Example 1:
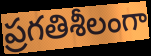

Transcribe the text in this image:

ప్రగతిశీలంగా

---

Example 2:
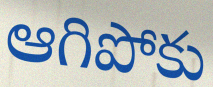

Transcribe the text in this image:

ఆగిపోకు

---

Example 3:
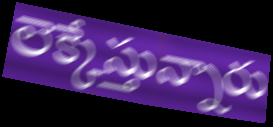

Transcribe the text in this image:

లెక్కేస్తున్నారు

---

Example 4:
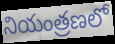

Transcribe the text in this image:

నియంత్రణలో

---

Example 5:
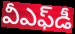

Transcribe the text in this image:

వీఎఫ్‌డీ